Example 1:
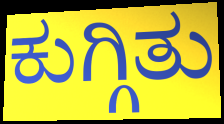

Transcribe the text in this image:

ಕುಗ್ಗಿತು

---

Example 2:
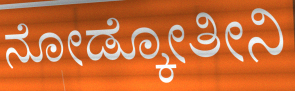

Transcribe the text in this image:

ನೋಡ್ಕೋತೀನಿ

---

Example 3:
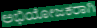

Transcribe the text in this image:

ಅಭಿಯೋಜಕರಾಗಿ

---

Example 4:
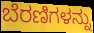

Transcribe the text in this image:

ಬೆರಣಿಗಳನ್ನು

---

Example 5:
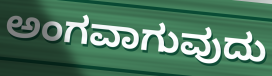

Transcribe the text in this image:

ಅಂಗವಾಗುವುದು